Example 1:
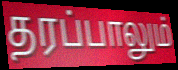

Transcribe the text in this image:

தரப்பாலும்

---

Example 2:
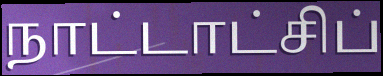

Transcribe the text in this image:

நாட்டாட்சிப்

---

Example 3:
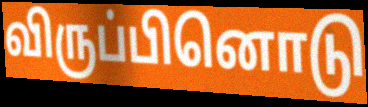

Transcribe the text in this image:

விருப்பினொடு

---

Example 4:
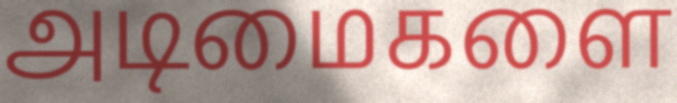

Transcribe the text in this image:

அடிமைகளை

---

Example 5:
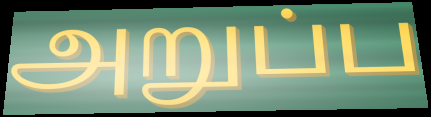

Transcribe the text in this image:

அறுப்ப